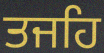
ਤਜਹਿ